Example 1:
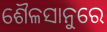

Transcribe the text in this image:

ଶୈଳସାନୁରେ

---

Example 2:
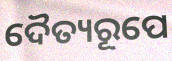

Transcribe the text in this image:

ଦୈତ୍ୟରୂପେ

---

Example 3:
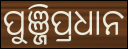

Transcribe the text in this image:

ପୁଞ୍ଜିପ୍ରଧାନ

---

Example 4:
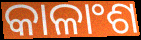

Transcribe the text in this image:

କାଳାଂଶ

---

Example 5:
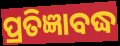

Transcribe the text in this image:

ପ୍ରତିଜ୍ଞାବଦ୍ଧ